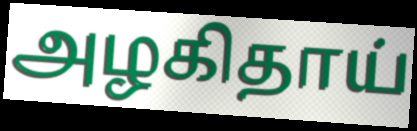
அழகிதாய்